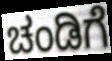
ಚಂಡಿಗೆ